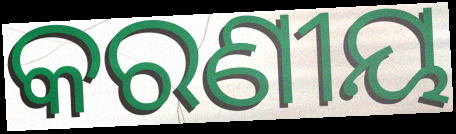
କରଣୀୟ